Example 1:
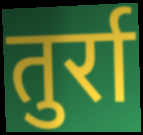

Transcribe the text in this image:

तुर्रा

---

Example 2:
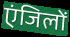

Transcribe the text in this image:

एंजिलों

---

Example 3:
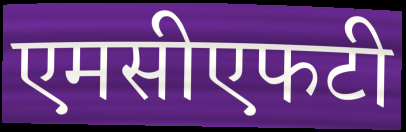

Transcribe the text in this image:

एमसीएफटी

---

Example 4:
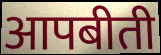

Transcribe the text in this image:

आपबीती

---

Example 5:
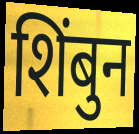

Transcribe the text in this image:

शिंबुन